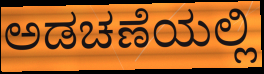
ಅಡಚಣೆಯಲ್ಲಿ